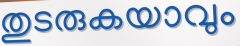
തുടരുകയാവും